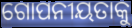
ଗୋପନୀୟତାକୁ